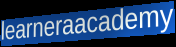
learneraacademy